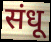
संधू